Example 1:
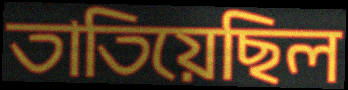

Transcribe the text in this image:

তাতিয়েছিল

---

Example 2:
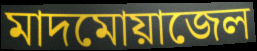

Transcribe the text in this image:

মাদমোয়াজেল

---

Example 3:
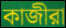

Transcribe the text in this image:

কাজীরা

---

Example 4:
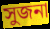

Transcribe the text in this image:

সুজনা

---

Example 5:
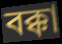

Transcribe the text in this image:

বক্কা